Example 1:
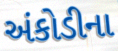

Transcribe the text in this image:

અંકોડીના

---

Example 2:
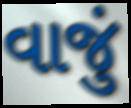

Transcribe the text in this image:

વાજું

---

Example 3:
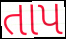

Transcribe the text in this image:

તાપ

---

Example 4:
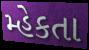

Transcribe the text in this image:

મ્હેકતા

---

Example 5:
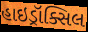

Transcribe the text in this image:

હાઇડ્રૉક્સિલ